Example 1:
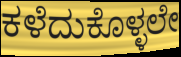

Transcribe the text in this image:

ಕಳೆದುಕೊಳ್ಳಲೇ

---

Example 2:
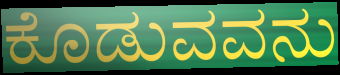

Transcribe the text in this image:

ಕೊಡುವವನು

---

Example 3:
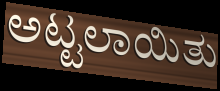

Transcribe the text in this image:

ಅಟ್ಟಲಾಯಿತು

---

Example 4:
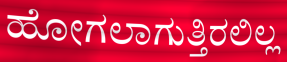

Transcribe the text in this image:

ಹೋಗಲಾಗುತ್ತಿರಲಿಲ್ಲ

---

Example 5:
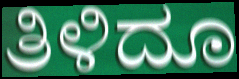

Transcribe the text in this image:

ತಿಳಿದೂ